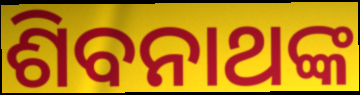
ଶିବନାଥଙ୍କ